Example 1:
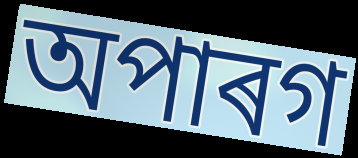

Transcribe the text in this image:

অপাৰগ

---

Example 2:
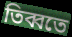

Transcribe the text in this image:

তিব্বতে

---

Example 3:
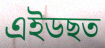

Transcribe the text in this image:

এইডছত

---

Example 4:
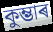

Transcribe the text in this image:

কুম্ভাৰ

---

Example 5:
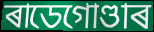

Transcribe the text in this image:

ৰাডেগোণ্ডাৰ